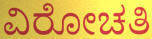
ವಿರೋಚತಿ